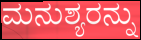
ಮನುಶ್ಯರನ್ನು